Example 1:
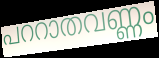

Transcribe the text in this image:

പററാതവണ്ണം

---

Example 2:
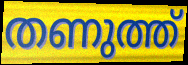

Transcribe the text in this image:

തണുത്ത്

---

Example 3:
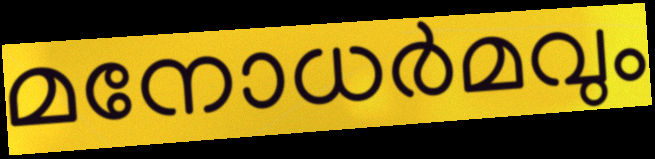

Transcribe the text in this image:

മനോധർമവും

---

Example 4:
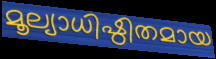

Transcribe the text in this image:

മൂല്യാധിഷ്ഠിതമായ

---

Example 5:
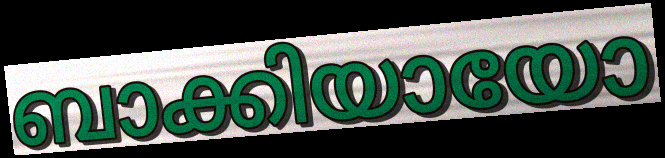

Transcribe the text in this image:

ബാക്കിയായോ